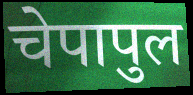
चेपापुल